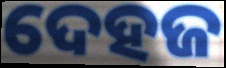
ଦେହଜ